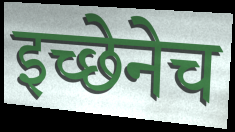
इच्छेनेच